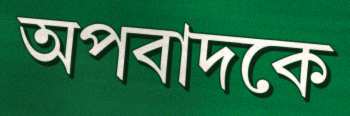
অপবাদকে